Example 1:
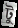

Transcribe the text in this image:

টু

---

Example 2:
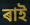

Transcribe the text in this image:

ৰাই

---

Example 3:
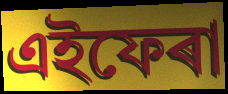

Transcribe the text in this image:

এইফেৰা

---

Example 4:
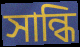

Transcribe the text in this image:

সান্ধি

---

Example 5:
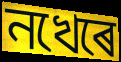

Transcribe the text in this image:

নখেৰে